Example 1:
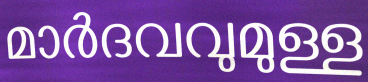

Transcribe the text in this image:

മാർദവവുമുള്ള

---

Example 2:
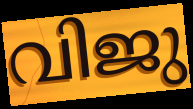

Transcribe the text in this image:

വിജു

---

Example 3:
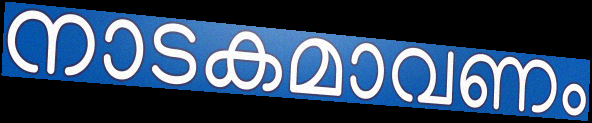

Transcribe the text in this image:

നാടകമാവണം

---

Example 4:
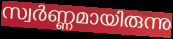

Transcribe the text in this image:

സ്വർണ്ണമായിരുന്നു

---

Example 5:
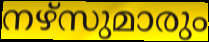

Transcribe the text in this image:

നഴ്സുമാരും